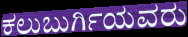
ಕಲುಬುರ್ಗಿಯವರು